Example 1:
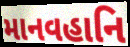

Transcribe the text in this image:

માનવહાનિ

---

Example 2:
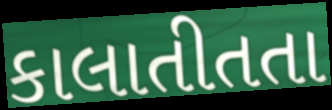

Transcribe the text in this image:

કાલાતીતતા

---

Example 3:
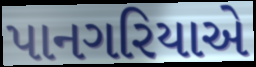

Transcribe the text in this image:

પાનગરિયાએ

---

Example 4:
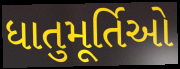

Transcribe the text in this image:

ધાતુમૂર્તિઓ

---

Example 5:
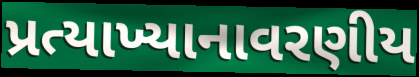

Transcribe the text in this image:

પ્રત્યાખ્યાનાવરણીય